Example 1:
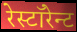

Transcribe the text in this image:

रेस्टॉरेन्ट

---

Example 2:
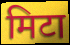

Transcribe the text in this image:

मिटा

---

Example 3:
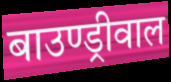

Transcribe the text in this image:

बाउण्ड्रीवाल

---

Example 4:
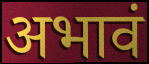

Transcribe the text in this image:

अभावं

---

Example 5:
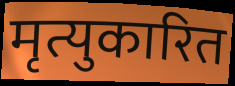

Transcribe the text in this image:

मृत्युकारित